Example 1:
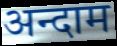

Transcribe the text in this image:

अन्दाम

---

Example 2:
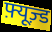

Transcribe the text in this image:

फ़्यूज़्ड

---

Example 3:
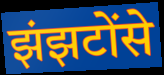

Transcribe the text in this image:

झंझटोंसे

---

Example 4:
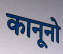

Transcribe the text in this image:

कानूनो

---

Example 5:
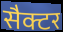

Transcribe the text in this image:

सैक्टर